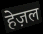
हेज़ल